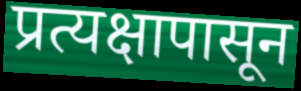
प्रत्यक्षापासून